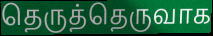
தெருத்தெருவாக